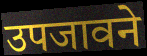
उपजावने